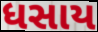
ધસાય